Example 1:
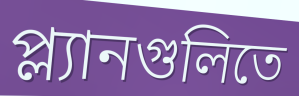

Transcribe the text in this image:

প্ল্যানগুলিতে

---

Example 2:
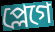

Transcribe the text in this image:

প্লেগে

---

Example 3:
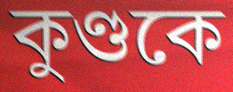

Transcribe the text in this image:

কুণ্ডকে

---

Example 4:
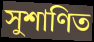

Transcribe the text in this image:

সুশাণিত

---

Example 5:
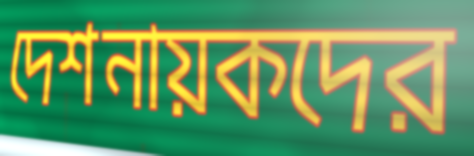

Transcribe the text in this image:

দেশনায়কদের